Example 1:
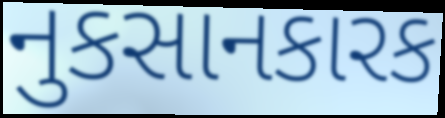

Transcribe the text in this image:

નુકસાનકારક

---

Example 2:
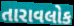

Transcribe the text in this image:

તારાવલોક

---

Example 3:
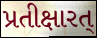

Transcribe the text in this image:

પ્રતીક્ષારત્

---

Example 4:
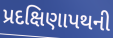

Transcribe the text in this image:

પ્રદક્ષિણાપથની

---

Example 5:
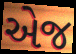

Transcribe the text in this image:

એજ